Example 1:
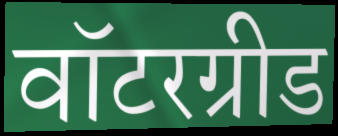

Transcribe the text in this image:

वॉटरग्रीड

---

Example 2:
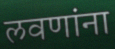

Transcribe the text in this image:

लवणांना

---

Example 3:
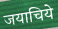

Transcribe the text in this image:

जयाचिये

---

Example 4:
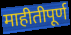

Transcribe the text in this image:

माहीतीपूर्ण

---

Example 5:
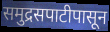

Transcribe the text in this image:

समुद्रसपाटीपासून